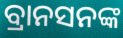
ବ୍ରାନସନଙ୍କ